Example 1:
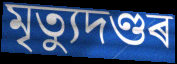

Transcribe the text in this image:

মৃত্যুদণ্ডৰ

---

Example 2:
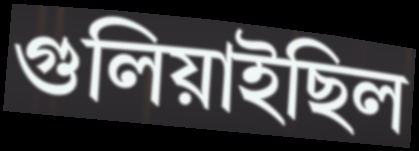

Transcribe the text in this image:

গুলিয়াইছিল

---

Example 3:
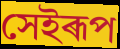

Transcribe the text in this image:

সেইৰূপ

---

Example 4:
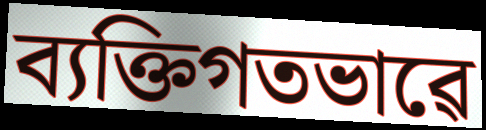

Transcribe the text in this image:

ব্যক্তিগতভাৱে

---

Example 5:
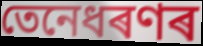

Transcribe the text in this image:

তেনেধৰণৰ